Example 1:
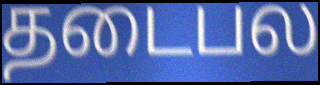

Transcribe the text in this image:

தடைபல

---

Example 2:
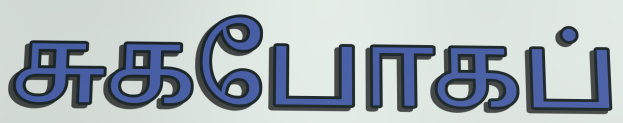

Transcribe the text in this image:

சுகபோகப்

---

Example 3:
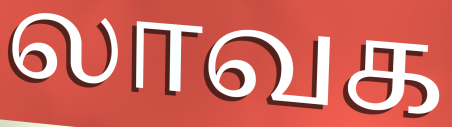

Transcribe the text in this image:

லாவக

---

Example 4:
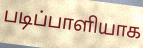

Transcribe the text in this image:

படிப்பாளியாக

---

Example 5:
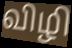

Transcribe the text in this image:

விழி